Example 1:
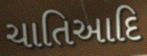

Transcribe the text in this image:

ચાતિઆદિ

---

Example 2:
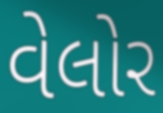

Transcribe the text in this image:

વેલોર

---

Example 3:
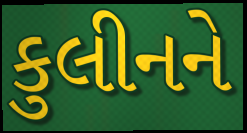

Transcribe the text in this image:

કુલીનને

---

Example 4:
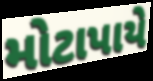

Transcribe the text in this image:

મોટાપાયે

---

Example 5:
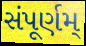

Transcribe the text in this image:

સંપૂર્ણમ્